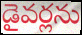
డైవర్లను